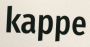
kappe